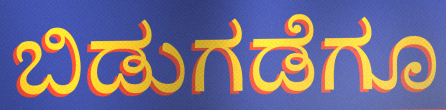
ಬಿಡುಗಡೆಗೂ